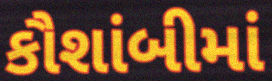
કૌશાંબીમાં